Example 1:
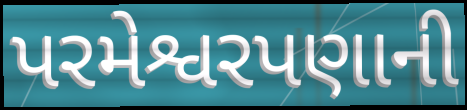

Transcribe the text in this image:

પરમેશ્વરપણાની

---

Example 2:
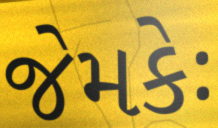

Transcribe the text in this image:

જેમકેઃ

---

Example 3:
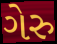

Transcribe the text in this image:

ગેરુ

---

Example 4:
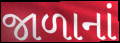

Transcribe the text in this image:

જાળાનાં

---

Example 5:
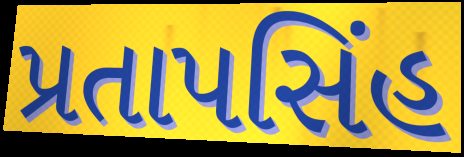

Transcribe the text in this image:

પ્રતાપસિંહ